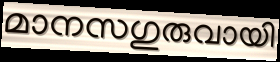
മാനസഗുരുവായി